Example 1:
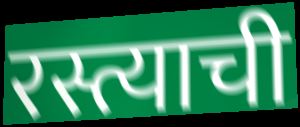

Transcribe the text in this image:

रस्त्याची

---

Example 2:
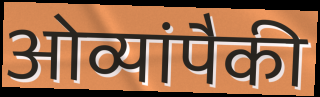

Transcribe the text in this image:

ओव्यांपैकी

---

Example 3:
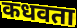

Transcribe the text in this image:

कधवता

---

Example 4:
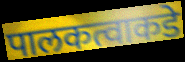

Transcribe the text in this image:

पालकत्वाकडे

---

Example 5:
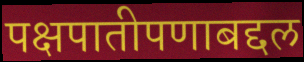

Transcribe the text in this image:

पक्षपातीपणाबद्दल